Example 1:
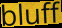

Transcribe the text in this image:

bluff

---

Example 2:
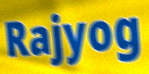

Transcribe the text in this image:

Rajyog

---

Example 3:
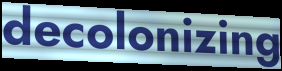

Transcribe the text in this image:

decolonizing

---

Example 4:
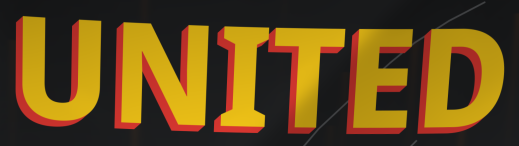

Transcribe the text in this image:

UNITED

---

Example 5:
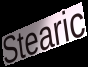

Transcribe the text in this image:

Stearic